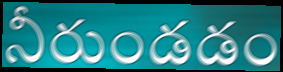
నీరుండడం